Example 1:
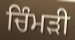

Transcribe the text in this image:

ਚਿੰਮੜੀ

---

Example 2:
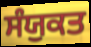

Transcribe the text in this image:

ਸੰਯੁਕਤ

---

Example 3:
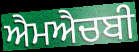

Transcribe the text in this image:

ਐਮਐਚਬੀ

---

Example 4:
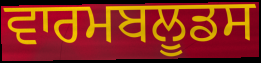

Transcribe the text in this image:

ਵਾਰਮਬਲੂਡਸ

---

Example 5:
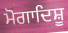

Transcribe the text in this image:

ਮੋਗਾਦਿਸ਼ੂ